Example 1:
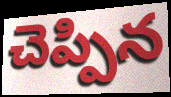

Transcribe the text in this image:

చెప్పిన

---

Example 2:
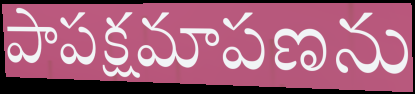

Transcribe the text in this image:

పాపక్షమాపణను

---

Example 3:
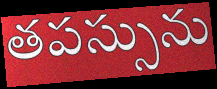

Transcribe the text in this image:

తపస్సును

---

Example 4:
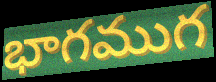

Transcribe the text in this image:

భాగముగ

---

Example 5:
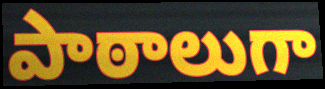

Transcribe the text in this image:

పాఠాలుగా